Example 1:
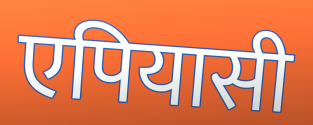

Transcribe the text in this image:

एपियासी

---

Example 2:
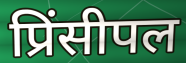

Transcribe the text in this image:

प्रिंसीपल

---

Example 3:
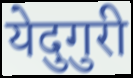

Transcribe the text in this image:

येदुगुरी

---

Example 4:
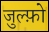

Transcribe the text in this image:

जुल्फ़ो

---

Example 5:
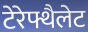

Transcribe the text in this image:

टेरेफ्थैलेट